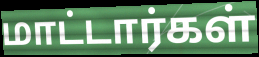
மாட்டார்கள்